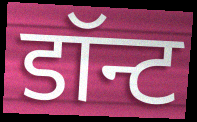
डॉन्ट